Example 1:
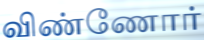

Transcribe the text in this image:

விண்ணோர்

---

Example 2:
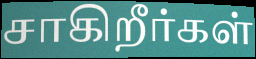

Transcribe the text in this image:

சாகிறீர்கள்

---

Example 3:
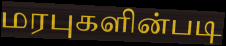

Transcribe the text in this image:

மரபுகளின்படி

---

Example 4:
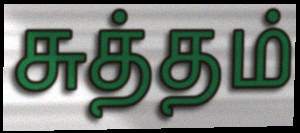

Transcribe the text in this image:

சுத்தம்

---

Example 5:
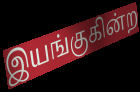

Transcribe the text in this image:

இயங்குகின்ற